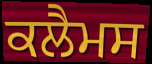
ਕਲੈਮਸ